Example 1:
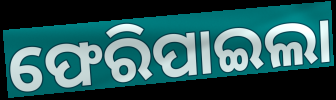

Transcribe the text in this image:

ଫେରିପାଇଲା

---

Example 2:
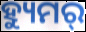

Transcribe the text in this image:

ହ୍ୟୁମର୍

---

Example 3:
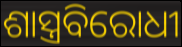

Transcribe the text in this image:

ଶାସ୍ତ୍ରବିରୋଧୀ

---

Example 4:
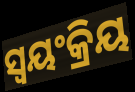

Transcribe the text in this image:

ସ୍ୱୟଂକ୍ରିୟ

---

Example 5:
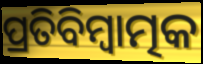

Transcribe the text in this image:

ପ୍ରତିବିମ୍ବାତ୍ମକ